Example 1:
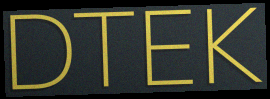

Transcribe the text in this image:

DTEK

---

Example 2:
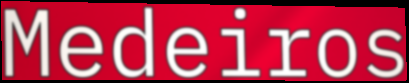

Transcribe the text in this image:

Medeiros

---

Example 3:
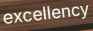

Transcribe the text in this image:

excellency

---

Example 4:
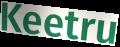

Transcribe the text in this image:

Keetru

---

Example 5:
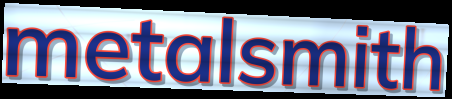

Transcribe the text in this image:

metalsmith